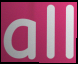
all